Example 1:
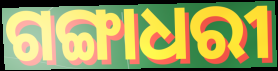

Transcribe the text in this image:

ଗଙ୍ଗାଧରୀ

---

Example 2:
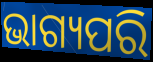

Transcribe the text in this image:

ଭାଗ୍ୟପରି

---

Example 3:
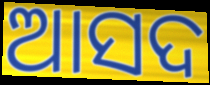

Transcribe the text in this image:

ଆସଦ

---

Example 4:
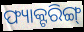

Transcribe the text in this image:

ଫ୍ୟାକ୍ଟରିଙ୍ଗ୍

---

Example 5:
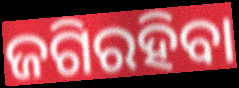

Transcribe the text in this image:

ଜଗିରହିବା